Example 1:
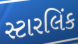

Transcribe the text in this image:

સ્ટારલિંક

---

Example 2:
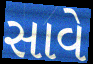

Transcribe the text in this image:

સાવે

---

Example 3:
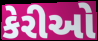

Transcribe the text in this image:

કેરીઓ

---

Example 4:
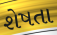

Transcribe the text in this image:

શેષતા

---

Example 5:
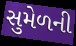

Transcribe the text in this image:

સુમેળની